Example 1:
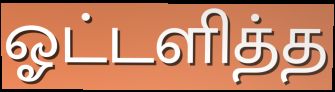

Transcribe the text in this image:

ஓட்டளித்த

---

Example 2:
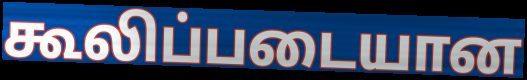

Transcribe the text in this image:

கூலிப்படையான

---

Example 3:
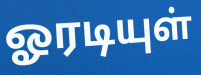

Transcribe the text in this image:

ஓரடியுள்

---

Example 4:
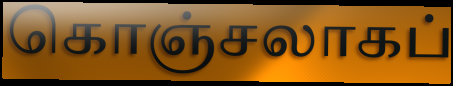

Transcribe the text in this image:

கொஞ்சலாகப்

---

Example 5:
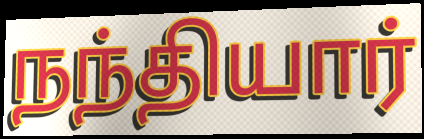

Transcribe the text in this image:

நந்தியார்